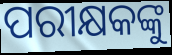
ପରୀକ୍ଷକଙ୍କୁ